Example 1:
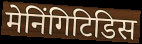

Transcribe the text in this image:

मेनिंगिटिडिस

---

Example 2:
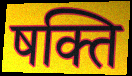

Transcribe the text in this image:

षक्ति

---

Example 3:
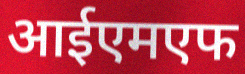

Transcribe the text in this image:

आईएमएफ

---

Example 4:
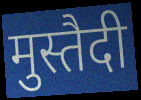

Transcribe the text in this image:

मुस्तैदी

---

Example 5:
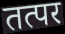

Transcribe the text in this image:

तत्पर